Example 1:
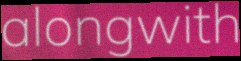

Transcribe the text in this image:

alongwith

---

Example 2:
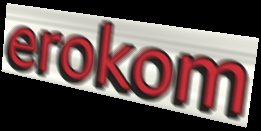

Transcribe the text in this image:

erokom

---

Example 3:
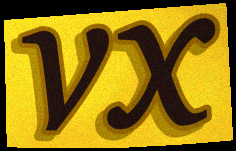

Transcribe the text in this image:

vx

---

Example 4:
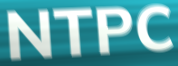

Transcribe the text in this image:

NTPC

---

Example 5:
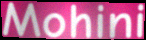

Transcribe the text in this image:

Mohini